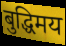
बुद्धिमय